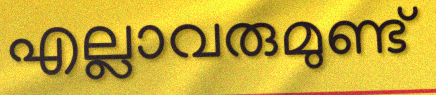
എല്ലാവരുമുണ്ട്